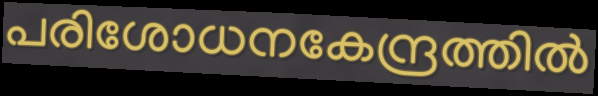
പരിശോധനകേന്ദ്രത്തിൽ